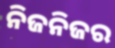
ନିଜନିଜର